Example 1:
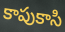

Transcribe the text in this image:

కాపుకాసి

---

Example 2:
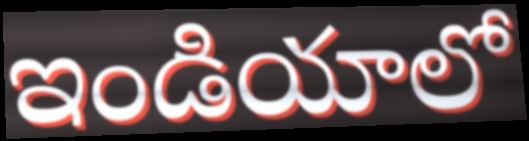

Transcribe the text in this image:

ఇండియాలో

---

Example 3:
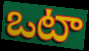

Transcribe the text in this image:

ఒటా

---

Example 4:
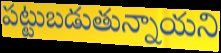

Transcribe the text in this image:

పట్టుబడుతున్నాయని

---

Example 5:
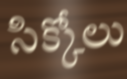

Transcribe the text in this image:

సిక్కోలు